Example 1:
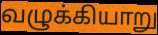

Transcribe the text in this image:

வழுக்கியாறு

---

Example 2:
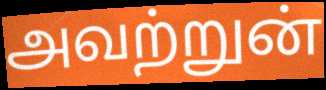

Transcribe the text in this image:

அவற்றுன்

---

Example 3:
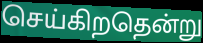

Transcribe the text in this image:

செய்கிறதென்று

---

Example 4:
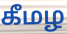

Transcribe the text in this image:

கீமழ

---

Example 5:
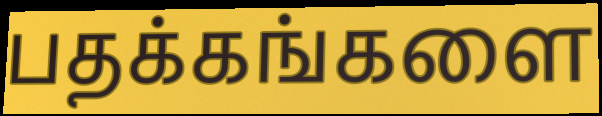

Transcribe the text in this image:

பதக்கங்களை